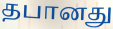
தபானது